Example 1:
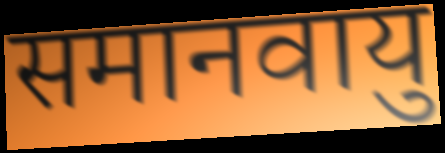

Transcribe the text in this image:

समानवायु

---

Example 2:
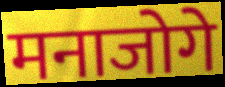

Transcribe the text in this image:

मनाजोगे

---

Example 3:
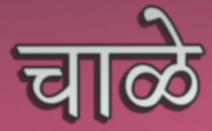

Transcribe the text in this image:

चाळे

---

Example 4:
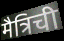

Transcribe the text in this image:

मैत्रिची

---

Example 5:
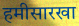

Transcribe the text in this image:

हमीसारखा